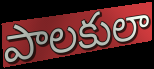
పాలకులా